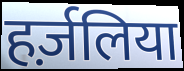
हर्ज़लिया